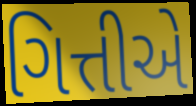
ગિત્તીએ